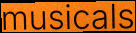
musicals